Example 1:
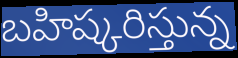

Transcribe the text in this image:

బహిష్కరిస్తున్న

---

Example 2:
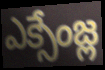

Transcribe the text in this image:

ఎక్సేంజ్ల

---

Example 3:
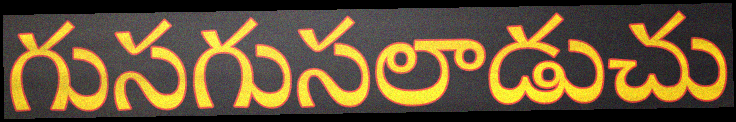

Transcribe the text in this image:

గుసగుసలాడుచు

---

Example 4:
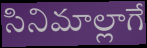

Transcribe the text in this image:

సినిమాల్లాగే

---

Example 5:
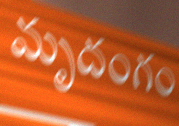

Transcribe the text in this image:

మృదంగం